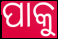
ପାକୁ